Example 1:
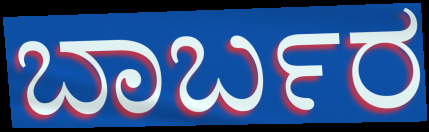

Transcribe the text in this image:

ಬಾರ್ಬರ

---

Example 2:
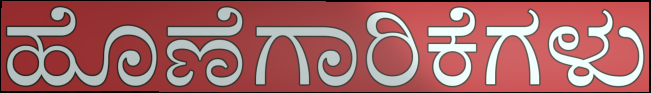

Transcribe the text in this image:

ಹೊಣೆಗಾರಿಕೆಗಳು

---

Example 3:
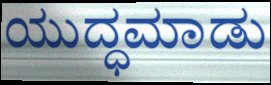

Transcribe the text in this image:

ಯುದ್ಧಮಾಡು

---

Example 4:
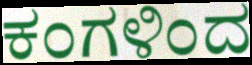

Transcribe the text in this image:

ಕಂಗಳಿಂದ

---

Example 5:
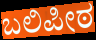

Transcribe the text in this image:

ಬಲಿಪೀಠ